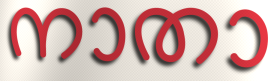
നാതാ